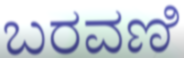
ಬರವಣಿ